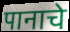
पानाचे